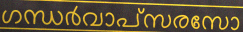
ഗന്ധർവാപ്സരസോ